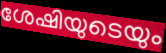
ശേഷിയുടെയും